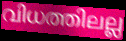
വിധത്തിലല്ല